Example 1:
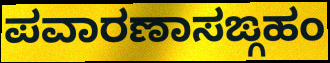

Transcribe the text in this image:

ಪವಾರಣಾಸಙ್ಗಹಂ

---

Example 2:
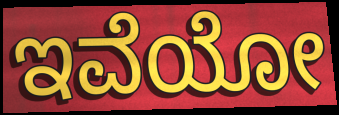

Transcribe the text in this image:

ಇವೆಯೋ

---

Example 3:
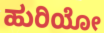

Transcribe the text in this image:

ಹುರಿಯೋ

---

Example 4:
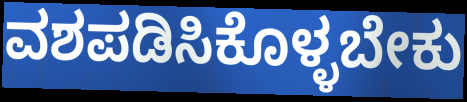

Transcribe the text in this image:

ವಶಪಡಿಸಿಕೊಳ್ಳಬೇಕು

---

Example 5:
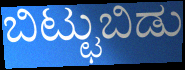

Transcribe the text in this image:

ಬಿಟ್ಟುಬಿಡು